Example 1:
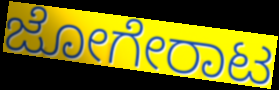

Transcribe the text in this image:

ಜೋಗೇರಾಟ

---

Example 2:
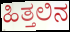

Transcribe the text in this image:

ಹಿತ್ತಲಿನ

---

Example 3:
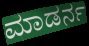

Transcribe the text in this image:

ಮಾಡರ್ನ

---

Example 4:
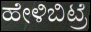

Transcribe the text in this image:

ಹೇಳಿಬಿಟ್ರೆ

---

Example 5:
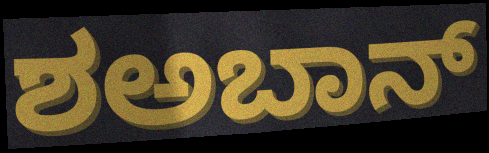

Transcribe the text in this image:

ಶಅಬಾನ್